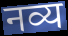
नव्य